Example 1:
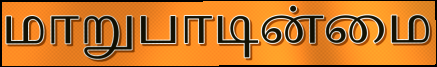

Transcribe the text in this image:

மாறுபாடின்மை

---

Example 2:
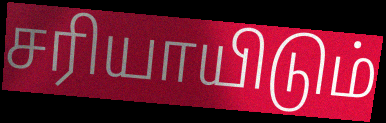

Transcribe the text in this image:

சரியாயிடும்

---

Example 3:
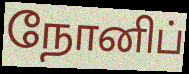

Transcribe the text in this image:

நோனிப்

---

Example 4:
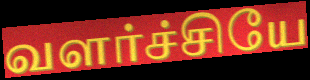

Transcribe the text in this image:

வளர்ச்சியே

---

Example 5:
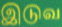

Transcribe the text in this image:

இடுவ